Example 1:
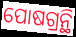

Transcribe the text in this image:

ପୋଷଗ୍ରନ୍ଥି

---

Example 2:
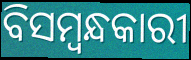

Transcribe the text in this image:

ବିସମ୍ବନ୍ଧକାରୀ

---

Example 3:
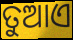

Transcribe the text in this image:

ତୁଆଏ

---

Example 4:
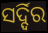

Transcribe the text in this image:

ସର୍ଦ୍ଦିର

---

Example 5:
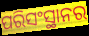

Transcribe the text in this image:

ପରିସଂସ୍ଥାନର